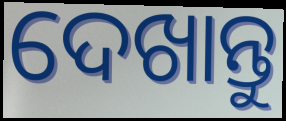
ଦେଖାନ୍ତୁ